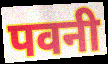
पवनी